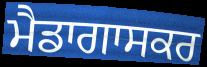
ਮੈਡਾਗਾਸਕਰ